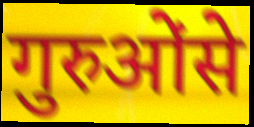
गुरुओंसे